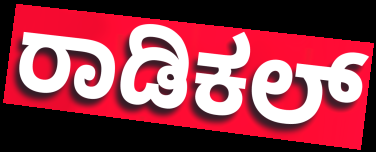
ರಾಡಿಕಲ್